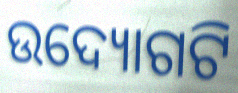
ଉଦ୍ୟୋଗଟି